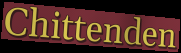
Chittenden